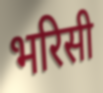
भरिसी